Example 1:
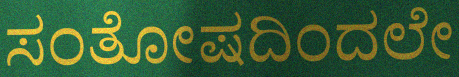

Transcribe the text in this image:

ಸಂತೋಷದಿಂದಲೇ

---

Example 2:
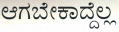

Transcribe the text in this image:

ಆಗಬೇಕಾದ್ದೆಲ್ಲ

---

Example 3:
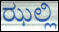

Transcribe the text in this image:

ಝಲ್ಲಿ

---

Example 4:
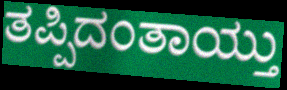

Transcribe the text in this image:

ತಪ್ಪಿದಂತಾಯ್ತು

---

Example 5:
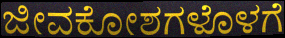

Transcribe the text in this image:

ಜೀವಕೋಶಗಳೊಳಗೆ